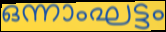
ഒന്നാംഘട്ടം